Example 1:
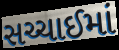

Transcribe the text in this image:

સચ્ચાઈમાં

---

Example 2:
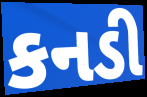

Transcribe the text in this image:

કનડી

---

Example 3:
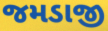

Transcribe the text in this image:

જમડાજી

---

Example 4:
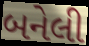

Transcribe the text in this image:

બનેલી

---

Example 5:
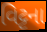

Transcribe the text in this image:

વિટ્ટના